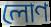
লোণ